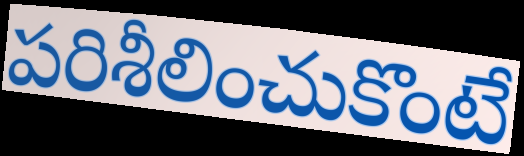
పరిశీలించుకొంటే